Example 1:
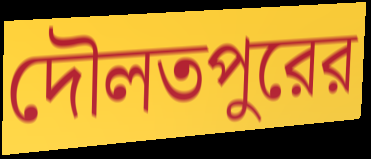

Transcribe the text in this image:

দৌলতপুরের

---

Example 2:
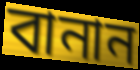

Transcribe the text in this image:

বানান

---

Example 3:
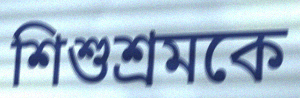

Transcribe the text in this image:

শিশুশ্রমকে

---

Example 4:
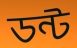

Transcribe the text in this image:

ডন্ট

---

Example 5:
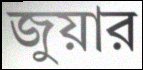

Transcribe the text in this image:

জুয়ার